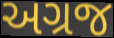
અગ્રજ